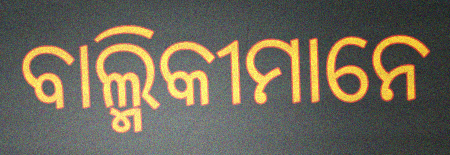
ବାଲ୍ମିକୀମାନେ